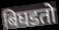
बिघडतो